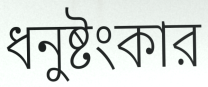
ধনুষ্টংকার